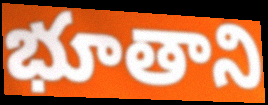
భూతాని